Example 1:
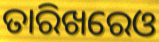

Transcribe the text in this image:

ତାରିଖରେଓ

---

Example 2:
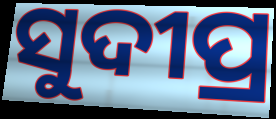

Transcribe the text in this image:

ସୁଦୀପ୍ର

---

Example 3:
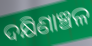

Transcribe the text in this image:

ଦକ୍ଷିଣାଞ୍ଚଳ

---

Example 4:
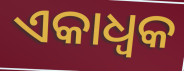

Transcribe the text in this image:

ଏକାଧ୍ଵକ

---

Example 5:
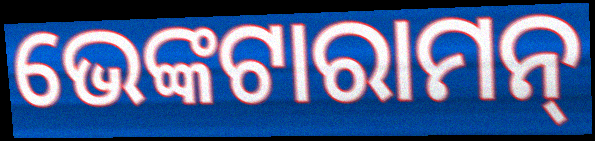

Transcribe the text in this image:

ଭେଙ୍କଟାରାମନ୍